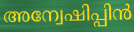
അന്വേഷിപ്പിൻ